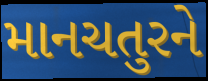
માનચતુરને